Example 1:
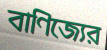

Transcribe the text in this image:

বাণিজ্যের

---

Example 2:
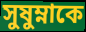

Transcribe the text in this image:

সুষুম্নাকে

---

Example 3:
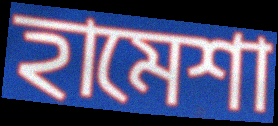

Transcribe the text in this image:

হামেশা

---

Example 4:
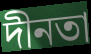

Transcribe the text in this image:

দীনতা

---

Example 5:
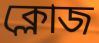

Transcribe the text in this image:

ক্লোজ